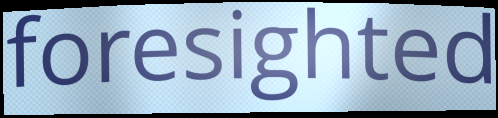
foresighted